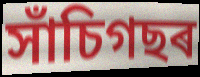
সাঁচিগছৰ